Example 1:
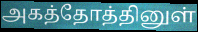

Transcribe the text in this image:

அகத்தோத்தினுள்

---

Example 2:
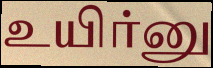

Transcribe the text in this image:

உயிர்னு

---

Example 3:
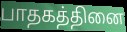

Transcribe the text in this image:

பாதகத்தினை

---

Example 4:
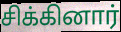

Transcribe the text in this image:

சிக்கினார்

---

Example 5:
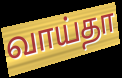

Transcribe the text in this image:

வாய்தா